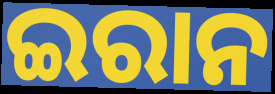
ଇରାନ